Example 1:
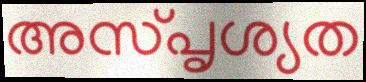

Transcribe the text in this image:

അസ്പൃശ്യത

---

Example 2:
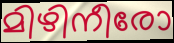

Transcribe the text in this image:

മിഴിനീരോ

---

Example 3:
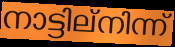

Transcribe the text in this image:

നാട്ടില്നിന്ന്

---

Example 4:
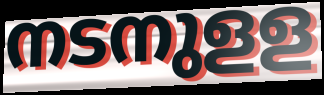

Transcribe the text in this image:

നടനുളള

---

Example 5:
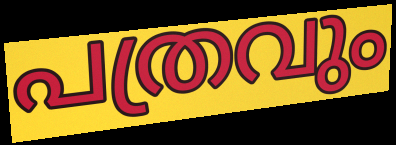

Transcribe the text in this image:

പത്രവും